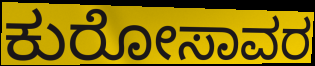
ಕುರೋಸಾವರ